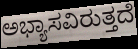
ಅಭ್ಯಾಸವಿರುತ್ತದೆ